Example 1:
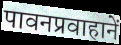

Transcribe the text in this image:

पावनप्रवाहानें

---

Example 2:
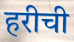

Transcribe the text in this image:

हरीची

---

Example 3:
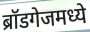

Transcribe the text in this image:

ब्रॉडगेजमध्ये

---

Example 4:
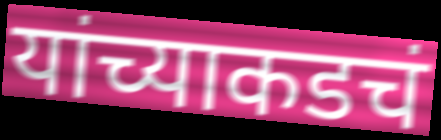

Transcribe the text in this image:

यांच्याकडचं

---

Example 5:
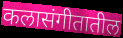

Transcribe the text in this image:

कलासंगीतातील